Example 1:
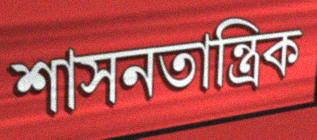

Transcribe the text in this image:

শাসনতান্ত্রিক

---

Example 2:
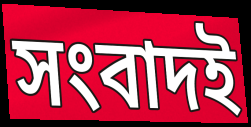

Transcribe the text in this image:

সংবাদই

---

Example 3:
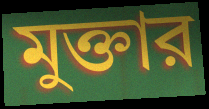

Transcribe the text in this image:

মুক্তার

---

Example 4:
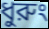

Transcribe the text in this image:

ধুরুং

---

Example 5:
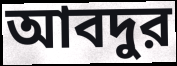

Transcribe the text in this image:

আবদুর